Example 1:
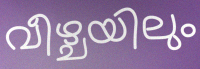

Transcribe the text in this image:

വീഴ്ചയിലും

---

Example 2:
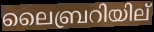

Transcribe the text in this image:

ലൈബ്രറിയില്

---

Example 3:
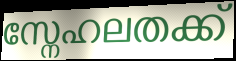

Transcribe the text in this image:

സ്നേഹലതക്ക്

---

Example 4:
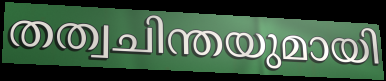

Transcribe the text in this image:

തത്വചിന്തയുമായി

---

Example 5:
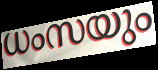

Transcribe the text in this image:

ധംസയും